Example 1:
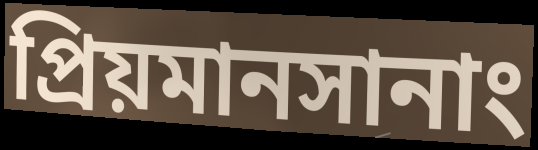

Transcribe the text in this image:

প্রিয়মানসানাং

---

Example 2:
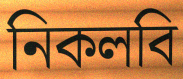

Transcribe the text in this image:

নিকলবি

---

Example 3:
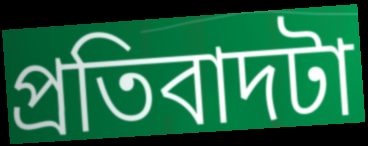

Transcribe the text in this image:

প্রতিবাদটা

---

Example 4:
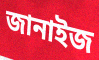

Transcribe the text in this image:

জানাইজ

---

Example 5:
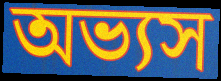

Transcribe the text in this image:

অভ্যস